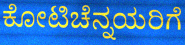
ಕೋಟಿಚೆನ್ನಯರಿಗೆ